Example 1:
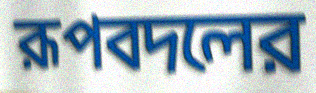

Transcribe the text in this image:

রূপবদলের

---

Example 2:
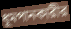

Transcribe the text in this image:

ধূমপানকারীর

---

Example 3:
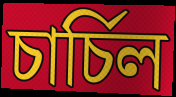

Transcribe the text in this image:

চার্চিল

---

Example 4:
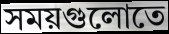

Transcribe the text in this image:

সময়গুলোতে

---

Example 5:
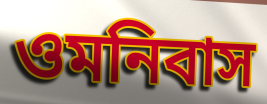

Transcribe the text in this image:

ওমনিবাস